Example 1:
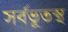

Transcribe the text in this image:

সর্বভূতস্থ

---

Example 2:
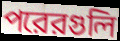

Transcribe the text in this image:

পরেরগুলি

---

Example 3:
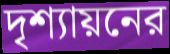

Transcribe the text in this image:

দৃশ্যায়নের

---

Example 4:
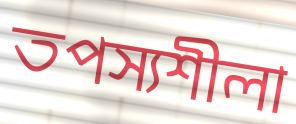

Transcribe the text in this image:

তপস্যশীলা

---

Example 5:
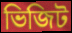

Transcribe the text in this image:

ভিজিট